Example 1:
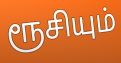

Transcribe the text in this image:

ரூசியும்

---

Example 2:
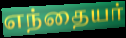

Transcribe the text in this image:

எந்தையர்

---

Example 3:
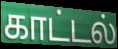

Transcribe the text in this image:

காட்டல்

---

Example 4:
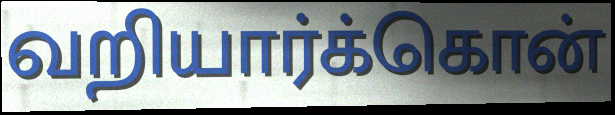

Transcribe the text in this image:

வறியார்க்கொன்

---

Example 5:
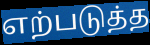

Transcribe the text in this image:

எற்படுத்த